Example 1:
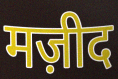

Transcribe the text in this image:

मज़ीद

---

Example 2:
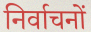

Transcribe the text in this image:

निर्वाचनों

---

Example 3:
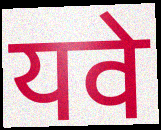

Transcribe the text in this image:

यवे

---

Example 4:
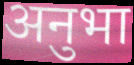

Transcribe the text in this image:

अनुभा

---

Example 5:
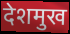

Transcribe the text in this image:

देशमुख